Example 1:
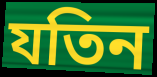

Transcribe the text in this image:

যতিন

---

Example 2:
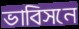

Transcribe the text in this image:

ভাবিসনে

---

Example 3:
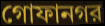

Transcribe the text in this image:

গোফানগর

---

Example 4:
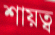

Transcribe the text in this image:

শায়ত্ব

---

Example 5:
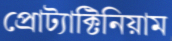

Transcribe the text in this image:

প্রোট্যাক্টিনিয়াম